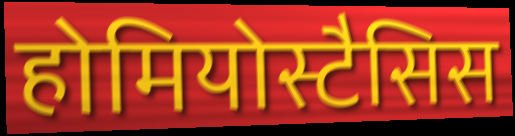
होमियोस्टैसिस